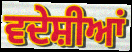
ਵਦੇਸ਼ੀਆਂ